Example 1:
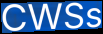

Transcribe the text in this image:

CWSs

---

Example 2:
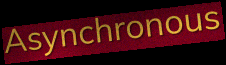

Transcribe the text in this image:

Asynchronous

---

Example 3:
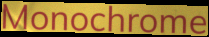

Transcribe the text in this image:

Monochrome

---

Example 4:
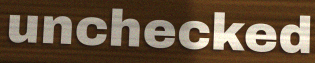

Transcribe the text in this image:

unchecked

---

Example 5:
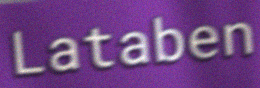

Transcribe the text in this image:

Lataben